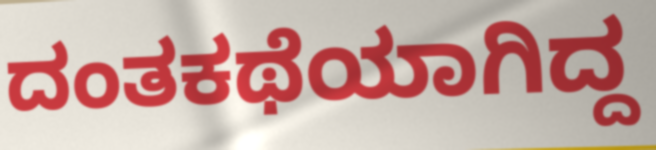
ದಂತಕಥೆಯಾಗಿದ್ದ